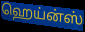
ஹெய்ன்ஸ்